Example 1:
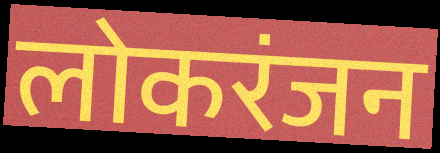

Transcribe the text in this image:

लोकरंजन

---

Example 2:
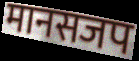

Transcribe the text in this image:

मानसजप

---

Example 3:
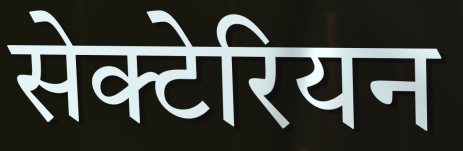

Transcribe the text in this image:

सेक्टेरियन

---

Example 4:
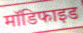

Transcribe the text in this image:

मॉडिफाइड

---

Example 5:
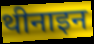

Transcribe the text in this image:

थीनाइन